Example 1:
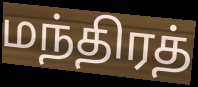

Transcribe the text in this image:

மந்திரத்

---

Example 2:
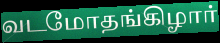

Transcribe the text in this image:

வடமோதங்கிழார்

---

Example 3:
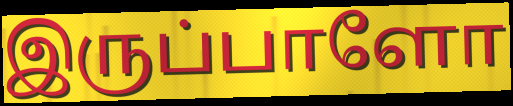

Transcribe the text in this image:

இருப்பாளோ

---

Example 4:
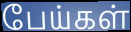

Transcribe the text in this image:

பேய்கள்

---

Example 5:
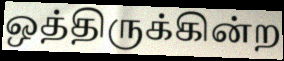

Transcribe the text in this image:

ஒத்திருக்கின்ற